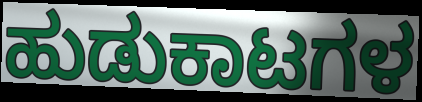
ಹುಡುಕಾಟಗಳ